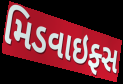
મિડવાઇફ્સ